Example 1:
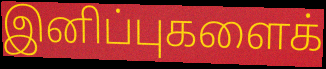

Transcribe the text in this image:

இனிப்புகளைக்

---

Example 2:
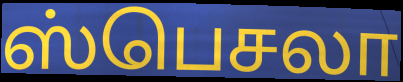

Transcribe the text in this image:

ஸ்பெசலா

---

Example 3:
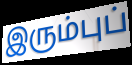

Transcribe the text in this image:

இரும்புப்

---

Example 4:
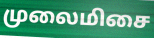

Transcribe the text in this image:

முலைமிசை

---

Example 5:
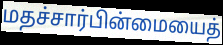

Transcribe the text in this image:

மதச்சார்பின்மையைத்